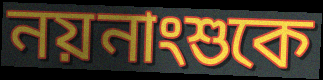
নয়নাংশুকে